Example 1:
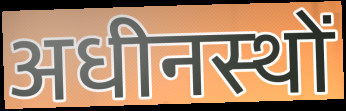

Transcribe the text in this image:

अधीनस्थों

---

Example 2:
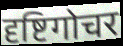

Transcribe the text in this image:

दृष्टिगोचर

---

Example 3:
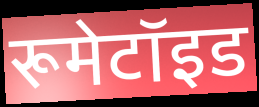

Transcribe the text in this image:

रूमेटॉइड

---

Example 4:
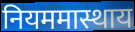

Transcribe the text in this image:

नियममास्थाय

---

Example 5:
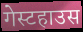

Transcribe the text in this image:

गेस्टहाउस